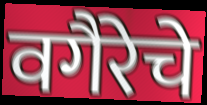
वगैरेचे